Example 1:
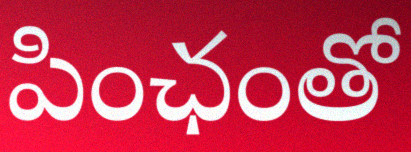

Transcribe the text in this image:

పింఛంతో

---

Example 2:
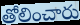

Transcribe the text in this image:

తోలించారు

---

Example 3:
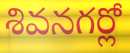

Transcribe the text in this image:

శివనగర్లో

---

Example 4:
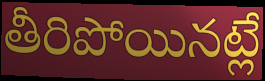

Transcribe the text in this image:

తీరిపోయినట్లే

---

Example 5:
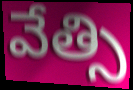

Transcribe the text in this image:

వేత్సి